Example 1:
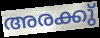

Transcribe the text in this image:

അരക്കു്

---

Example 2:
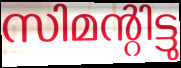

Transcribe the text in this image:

സിമന്റിട്ടു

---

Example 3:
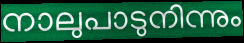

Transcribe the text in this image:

നാലുപാടുനിന്നും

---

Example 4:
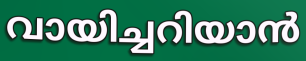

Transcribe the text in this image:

വായിച്ചറിയാൻ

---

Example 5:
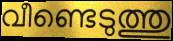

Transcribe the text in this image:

വീണ്ടെടുത്തു